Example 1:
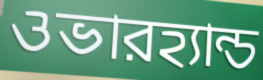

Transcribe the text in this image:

ওভারহ্যান্ড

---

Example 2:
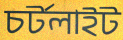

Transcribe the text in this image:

চর্টলাইট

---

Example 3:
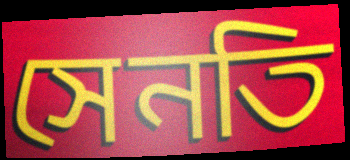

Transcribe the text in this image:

সেনতি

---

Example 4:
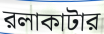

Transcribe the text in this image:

রলাকাটার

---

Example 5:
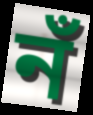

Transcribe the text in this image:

নঁ